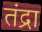
तंद्रा